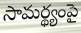
సామర్థ్యంపై